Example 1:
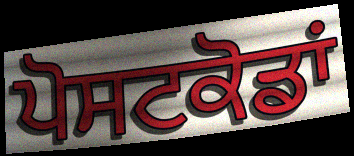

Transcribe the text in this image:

ਪੋਸਟਕੋਡਾਂ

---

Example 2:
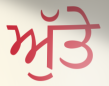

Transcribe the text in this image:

ਅੁੱਤੇ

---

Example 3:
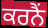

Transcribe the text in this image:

ਕਰਨੈਂ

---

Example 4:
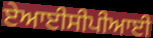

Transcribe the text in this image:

ਏਆਈਸੀਪੀਆਈ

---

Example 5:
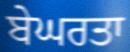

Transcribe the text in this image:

ਬੇਘਰਤਾ